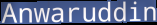
Anwaruddin